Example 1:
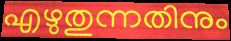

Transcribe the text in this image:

എഴുതുന്നതിനും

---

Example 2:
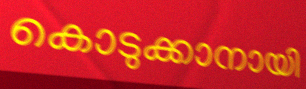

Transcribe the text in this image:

കൊടുക്കാനായി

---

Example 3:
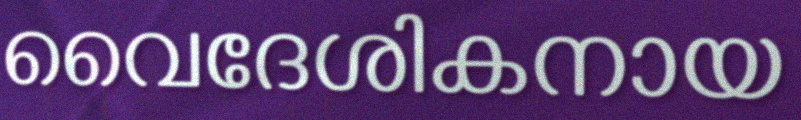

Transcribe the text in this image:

വൈദേശികനായ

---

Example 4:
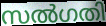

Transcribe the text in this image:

സൽഗതി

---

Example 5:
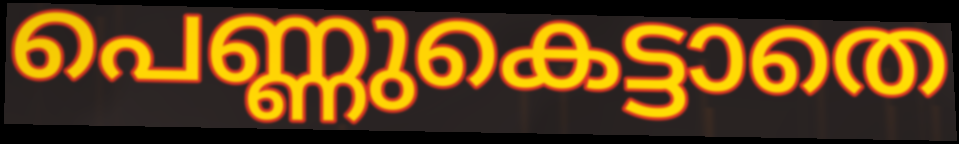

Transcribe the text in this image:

പെണ്ണുകെട്ടാതെ